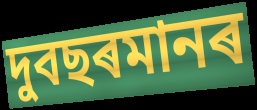
দুবছৰমানৰ